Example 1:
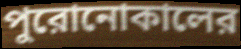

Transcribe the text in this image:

পুরোনোকালের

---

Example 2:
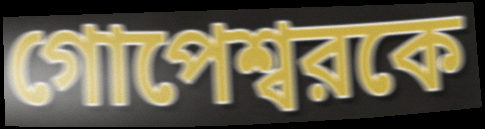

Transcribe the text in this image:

গোপেশ্বরকে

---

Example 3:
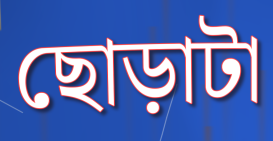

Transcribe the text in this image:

ছোড়াটা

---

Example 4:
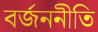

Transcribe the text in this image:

বর্জননীতি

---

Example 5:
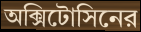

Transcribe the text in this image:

অক্সিটোসিনের